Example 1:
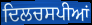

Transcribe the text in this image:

ਦਿਲਚਸਪੀਆਂ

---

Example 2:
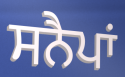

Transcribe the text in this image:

ਸਨੈਪਾਂ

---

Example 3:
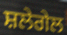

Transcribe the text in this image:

ਸ਼ਲੇਗੇਲ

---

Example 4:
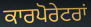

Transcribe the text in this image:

ਕਾਰਪੋਰੇਟਰਾਂ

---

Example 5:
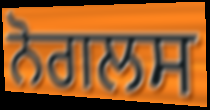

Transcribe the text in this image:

ਨੋਗਲਸ